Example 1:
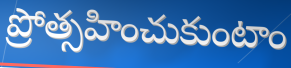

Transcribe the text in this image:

ప్రోత్సహించుకుంటాం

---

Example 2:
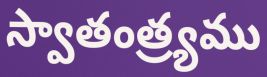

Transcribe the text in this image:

స్వాతంత్ర్యము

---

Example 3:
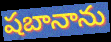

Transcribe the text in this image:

షబానాను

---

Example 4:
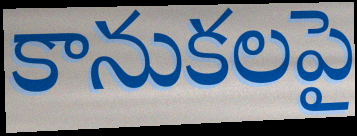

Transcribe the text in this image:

కానుకలపై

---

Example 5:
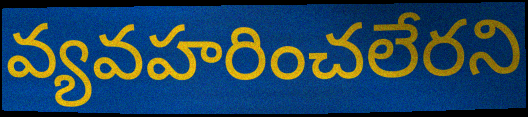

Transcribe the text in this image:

వ్యవహరించలేరని